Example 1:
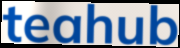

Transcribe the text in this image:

teahub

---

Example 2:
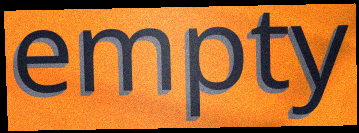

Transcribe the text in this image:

empty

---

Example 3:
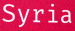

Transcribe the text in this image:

Syria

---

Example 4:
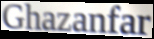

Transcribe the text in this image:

Ghazanfar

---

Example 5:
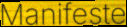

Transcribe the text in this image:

Manifeste